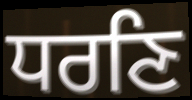
ਧਰਣਿ